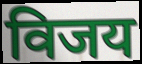
विजय